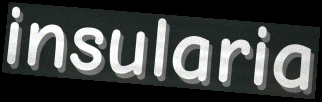
insularia